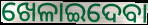
ଖେଳାଇଦେବା